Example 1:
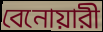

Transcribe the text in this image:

বেনোয়ারী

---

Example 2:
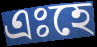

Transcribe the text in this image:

এঃহে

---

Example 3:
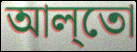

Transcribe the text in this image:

আল্‌তো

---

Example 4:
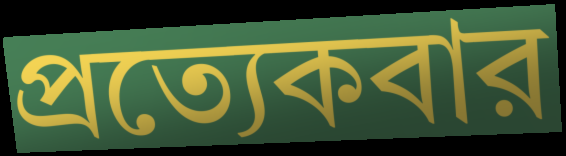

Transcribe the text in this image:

প্রত্যেকবার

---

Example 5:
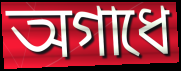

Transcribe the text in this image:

অগাধে